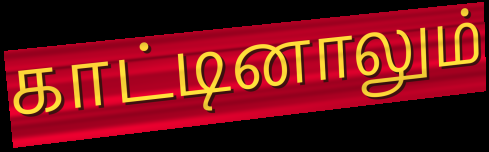
காட்டினாலும்